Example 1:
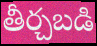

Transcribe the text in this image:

తీర్చబడి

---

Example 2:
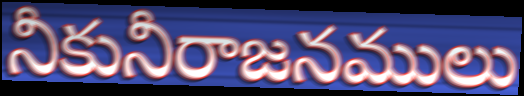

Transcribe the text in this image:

నీకునీరాజనములు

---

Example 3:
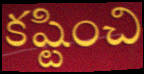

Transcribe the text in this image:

కష్టించి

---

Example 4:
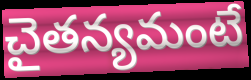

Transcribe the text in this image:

చైతన్యమంటే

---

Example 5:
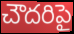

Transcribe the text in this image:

చౌదరిపై